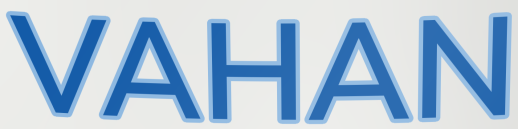
VAHAN